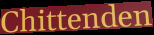
Chittenden